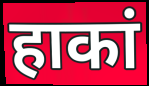
हाकां